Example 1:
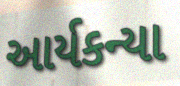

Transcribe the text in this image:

આર્યકન્યા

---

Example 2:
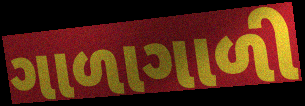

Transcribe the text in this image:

ગાળાગાળી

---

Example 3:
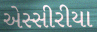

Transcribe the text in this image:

એસ્સીરીયા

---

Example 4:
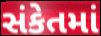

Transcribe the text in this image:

સંકેતમાં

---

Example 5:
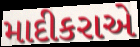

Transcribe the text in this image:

માદીકરાએ